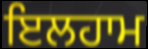
ਇਲਹਾਮ